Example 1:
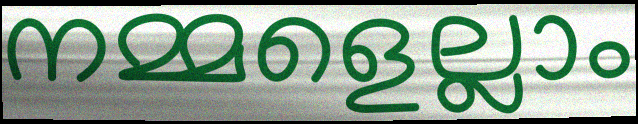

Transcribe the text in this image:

നമ്മളെല്ലാം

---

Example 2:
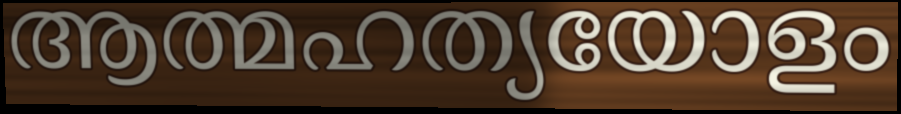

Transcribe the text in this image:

ആത്മഹത്യയോളം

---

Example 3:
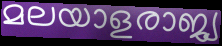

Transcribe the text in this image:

മലയാളരാജ്യ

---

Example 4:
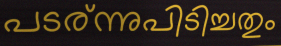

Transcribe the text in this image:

പടര്ന്നുപിടിച്ചതും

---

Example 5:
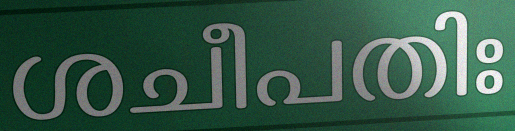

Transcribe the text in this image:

ശചീപതിഃ